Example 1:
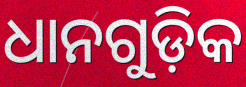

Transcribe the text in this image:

ଧାନଗୁଡ଼ିକ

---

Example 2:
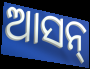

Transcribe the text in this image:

ଆସନ୍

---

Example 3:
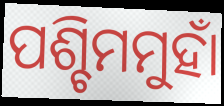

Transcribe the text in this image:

ପଶ୍ଚିମମୁହାଁ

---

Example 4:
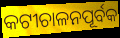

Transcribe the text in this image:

କଟୀଚାଳନପୂର୍ବକ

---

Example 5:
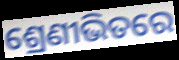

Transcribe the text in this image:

ଶ୍ରେଣୀଭିତରେ